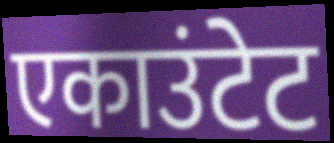
एकाउंटेट